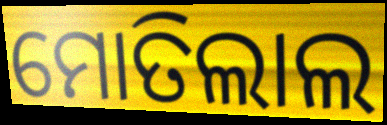
ମୋତିଲାଲ